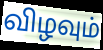
விழவும்